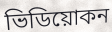
ভিডিয়োকন